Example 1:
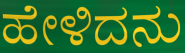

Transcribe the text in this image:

ಹೇಳಿದನು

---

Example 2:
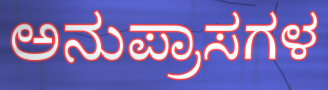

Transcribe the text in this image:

ಅನುಪ್ರಾಸಗಳ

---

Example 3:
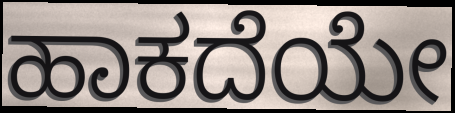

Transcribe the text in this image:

ಹಾಕದೆಯೇ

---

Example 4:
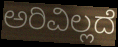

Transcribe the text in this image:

ಅರಿವಿಲ್ಲದೆ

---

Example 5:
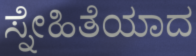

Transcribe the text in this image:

ಸ್ನೇಹಿತೆಯಾದ